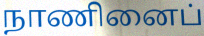
நாணினைப்